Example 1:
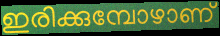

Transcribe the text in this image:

ഇരിക്കുമ്പോഴാണ്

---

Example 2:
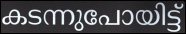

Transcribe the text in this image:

കടന്നുപോയിട്ട്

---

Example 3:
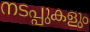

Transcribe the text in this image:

നടപ്പുകളും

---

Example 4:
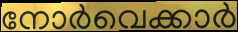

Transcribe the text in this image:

നോർവെക്കാർ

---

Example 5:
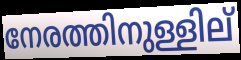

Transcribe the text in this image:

നേരത്തിനുള്ളില്